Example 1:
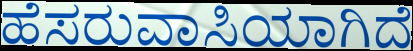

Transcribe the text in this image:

ಹೆಸರುವಾಸಿಯಾಗಿದೆ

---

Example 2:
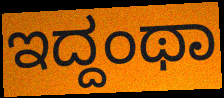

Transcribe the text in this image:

ಇದ್ದಂಥಾ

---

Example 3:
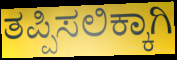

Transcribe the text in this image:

ತಪ್ಪಿಸಲಿಕ್ಕಾಗಿ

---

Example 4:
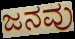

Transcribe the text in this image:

ಜನವು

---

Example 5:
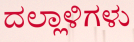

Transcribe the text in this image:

ದಲ್ಲಾಳಿಗಳು